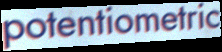
potentiometric